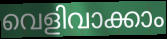
വെളിവാക്കാം